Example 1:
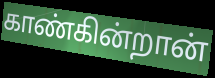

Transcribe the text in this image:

காண்கின்றான்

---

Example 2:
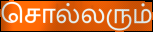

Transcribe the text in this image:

சொல்லரும்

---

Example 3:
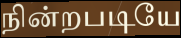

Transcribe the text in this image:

நின்றபடியே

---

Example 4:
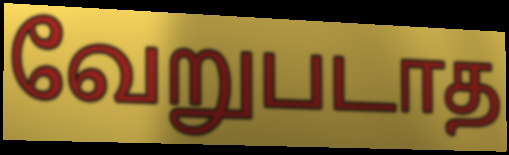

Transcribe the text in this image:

வேறுபடாத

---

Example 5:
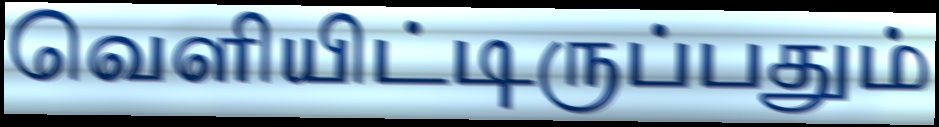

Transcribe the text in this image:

வெளியிட்டிருப்பதும்